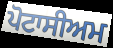
ਪੋਟਾਸੀਅਮ